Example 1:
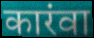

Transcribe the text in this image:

कारंवा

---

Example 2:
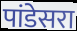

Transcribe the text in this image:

पांडेसरा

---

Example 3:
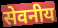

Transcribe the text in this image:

सेवनीय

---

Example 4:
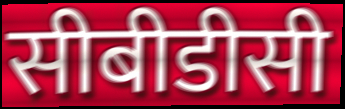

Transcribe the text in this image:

सीबीडीसी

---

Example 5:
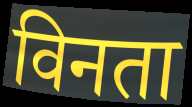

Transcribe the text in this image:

विनता